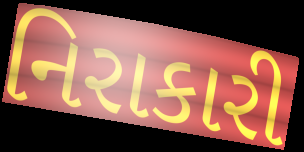
નિરાકારી